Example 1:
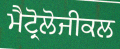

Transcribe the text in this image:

ਮੈਟ੍ਰੋਲੋਜੀਕਲ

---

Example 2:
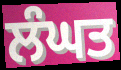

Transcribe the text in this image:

ਲੰਘਤ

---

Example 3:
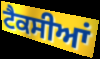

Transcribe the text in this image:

ਟੈਕਸੀਆਂ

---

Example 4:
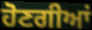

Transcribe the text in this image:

ਹੋਣਗੀਆਂ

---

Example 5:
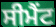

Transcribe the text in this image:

ਸੀਮੈੰਟ